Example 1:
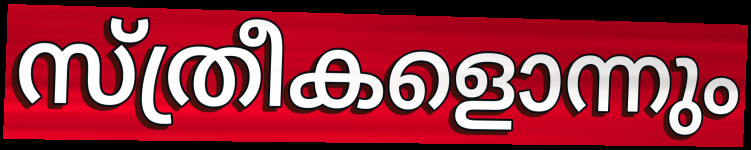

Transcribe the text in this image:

സ്ത്രീകളൊന്നും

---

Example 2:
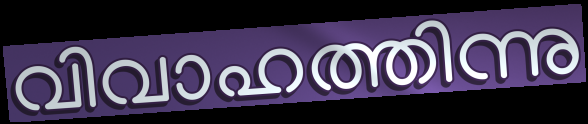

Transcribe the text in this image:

വിവാഹത്തിന്നു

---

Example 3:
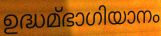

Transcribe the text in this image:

ഉദ്ധമ്ഭാഗിയാനം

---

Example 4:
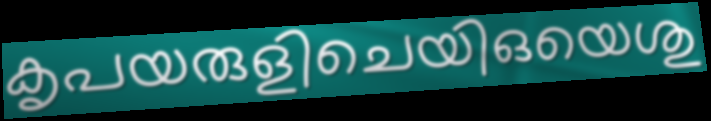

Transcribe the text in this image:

കൃപയരുളിചെയിഒയെശു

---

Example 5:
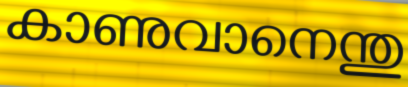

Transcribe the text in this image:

കാണുവാനെന്തു